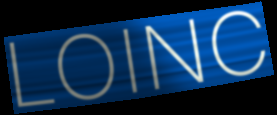
LOINC